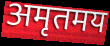
अमृतमय